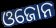
ଓଜୋନ